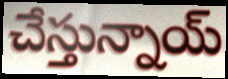
చేస్తున్నాయ్